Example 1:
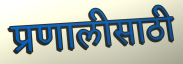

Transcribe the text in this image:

प्रणालीसाठी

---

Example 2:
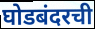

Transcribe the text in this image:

घोडबंदरची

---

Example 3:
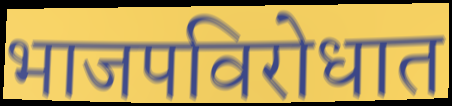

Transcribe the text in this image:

भाजपविरोधात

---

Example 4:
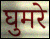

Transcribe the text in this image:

घुमरे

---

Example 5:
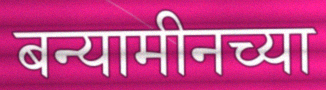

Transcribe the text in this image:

बन्यामीनच्या